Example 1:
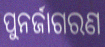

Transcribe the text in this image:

ପୁନର୍ଜାଗରଣ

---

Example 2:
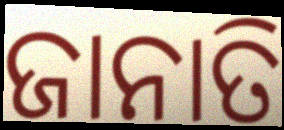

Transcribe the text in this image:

ଜାନାତି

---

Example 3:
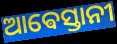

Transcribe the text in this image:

ଆଵେସ୍ତାନୀ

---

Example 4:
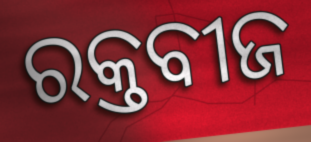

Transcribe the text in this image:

ରକ୍ତବୀଜ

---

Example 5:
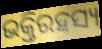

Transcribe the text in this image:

ଭକ୍ତିରହସ୍ୟ